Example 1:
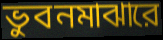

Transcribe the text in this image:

ভুবনমাঝারে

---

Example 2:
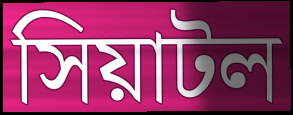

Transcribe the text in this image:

সিয়াটল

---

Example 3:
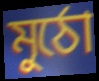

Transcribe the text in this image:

মুঠো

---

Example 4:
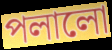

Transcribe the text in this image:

পলালো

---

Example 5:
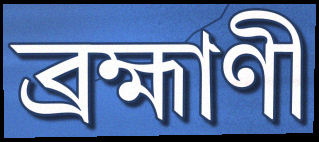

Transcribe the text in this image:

ব্রহ্মাণী